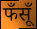
फँसूँ